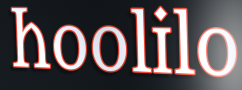
hoolilo